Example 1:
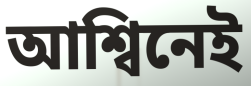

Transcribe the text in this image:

আশ্বিনেই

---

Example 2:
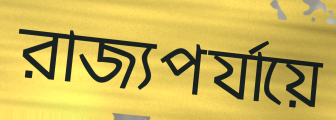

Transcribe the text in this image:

রাজ্যপর্যায়ে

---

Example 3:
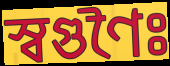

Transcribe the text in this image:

স্বগুণৈঃ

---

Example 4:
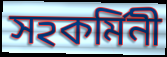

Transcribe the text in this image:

সহকর্মিনী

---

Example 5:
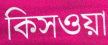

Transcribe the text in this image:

কিসওয়া